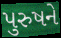
પુરુષને